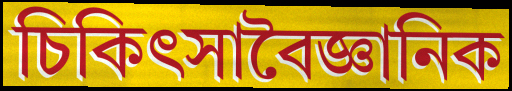
চিকিৎসাবৈজ্ঞানিক